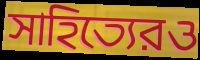
সাহিত্যেরও